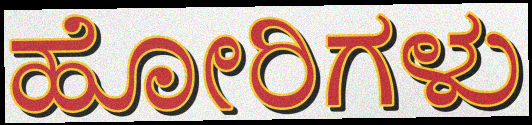
ಹೋರಿಗಳು